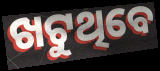
ଖଟୁଥିବେ